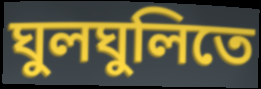
ঘুলঘুলিতে